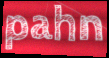
pahn